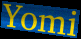
Yomi